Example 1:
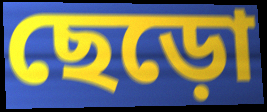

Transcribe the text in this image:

ছেড়ো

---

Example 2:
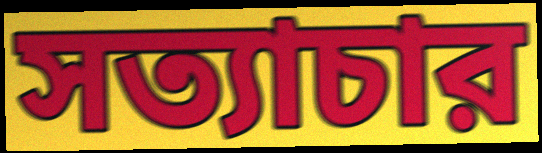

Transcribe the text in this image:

সত্যাচার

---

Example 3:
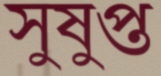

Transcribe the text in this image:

সুষুপ্ত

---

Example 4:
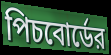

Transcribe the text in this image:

পিচবোর্ডের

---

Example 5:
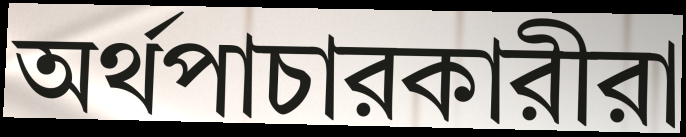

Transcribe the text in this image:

অর্থপাচারকারীরা